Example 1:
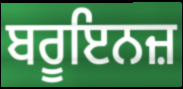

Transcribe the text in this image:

ਬਰੂਇਨਜ਼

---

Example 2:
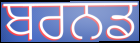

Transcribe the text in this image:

ਬਰਨਡ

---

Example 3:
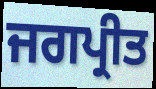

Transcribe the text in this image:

ਜਗਪ੍ਰੀਤ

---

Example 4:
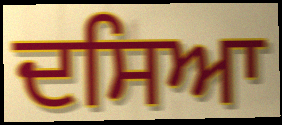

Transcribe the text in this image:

ਦਸਿਆ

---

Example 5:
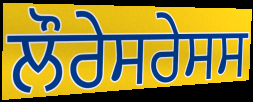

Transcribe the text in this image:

ਲੌਰੇਸਰੇਸਸ